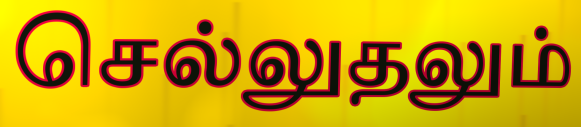
செல்லுதலும்